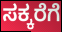
ಸಕ್ಕರೆಗೆ